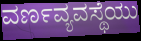
ವರ್ಣವ್ಯವಸ್ಥೆಯು